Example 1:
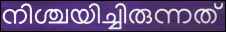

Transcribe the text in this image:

നിശ്ചയിച്ചിരുന്നത്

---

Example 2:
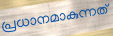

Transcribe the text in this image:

പ്രധാനമാകുന്നത്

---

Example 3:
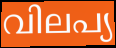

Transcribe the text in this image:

വിലപ്യ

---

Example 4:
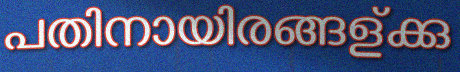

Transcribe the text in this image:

പതിനായിരങ്ങള്ക്കു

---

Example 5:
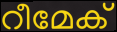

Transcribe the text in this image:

റീമേക്